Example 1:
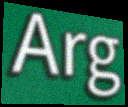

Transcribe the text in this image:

Arg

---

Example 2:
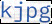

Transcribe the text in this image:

kjpg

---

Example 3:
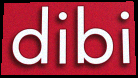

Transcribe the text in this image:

dibi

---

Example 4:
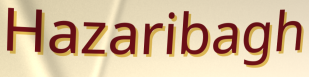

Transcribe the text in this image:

Hazaribagh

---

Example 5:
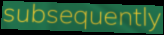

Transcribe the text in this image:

subsequently